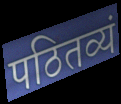
पठितव्यं